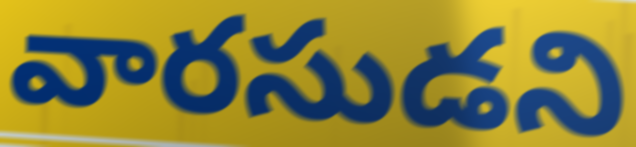
వారసుడని